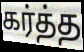
கர்த்த